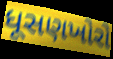
ધૂસણખોરો